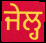
ਜੇਲ੍ਹ